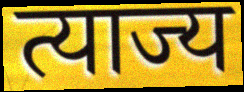
त्याज्य